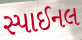
સ્પાઈનલ